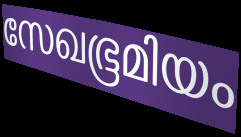
സേഖഭൂമിയം